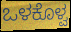
ಒಳಕೊಳ್ವ